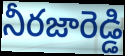
నీరజారెడ్డి